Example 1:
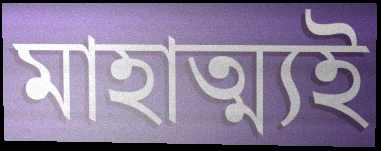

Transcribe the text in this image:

মাহাত্ম্যই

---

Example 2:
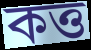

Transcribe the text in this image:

কত্ত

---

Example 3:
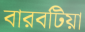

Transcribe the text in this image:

বারবটিয়া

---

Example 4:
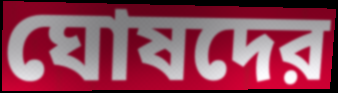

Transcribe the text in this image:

ঘোষদের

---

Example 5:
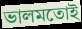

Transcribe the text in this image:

ভালমতোই